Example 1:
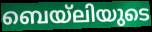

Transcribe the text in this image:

ബെയ്ലിയുടെ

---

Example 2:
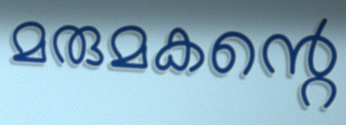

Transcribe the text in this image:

മരുമകന്റെ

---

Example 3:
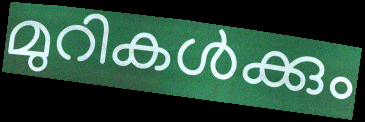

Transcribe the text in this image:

മുറികൾക്കും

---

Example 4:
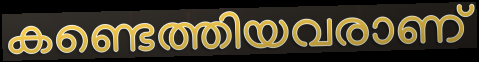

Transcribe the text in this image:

കണ്ടെത്തിയവരാണ്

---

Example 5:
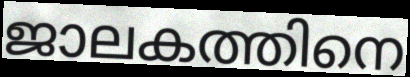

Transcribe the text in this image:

ജാലകത്തിനെ